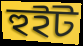
হুইট